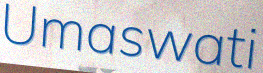
Umaswati